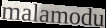
malamodu